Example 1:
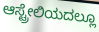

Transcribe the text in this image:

ಆಸ್ಟ್ರೇಲಿಯದಲ್ಲೂ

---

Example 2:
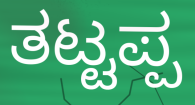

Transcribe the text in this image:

ತಟ್ಟಪ್ಪ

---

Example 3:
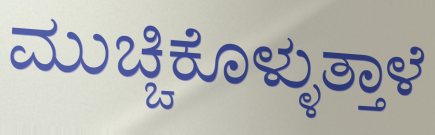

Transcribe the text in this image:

ಮುಚ್ಚಿಕೊಳ್ಳುತ್ತಾಳೆ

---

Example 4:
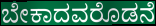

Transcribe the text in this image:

ಬೇಕಾದವರೊಡನೆ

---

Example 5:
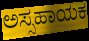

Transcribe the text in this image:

ಅಸ್ಸಹಾಯಕ